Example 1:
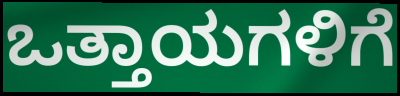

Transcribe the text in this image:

ಒತ್ತಾಯಗಳಿಗೆ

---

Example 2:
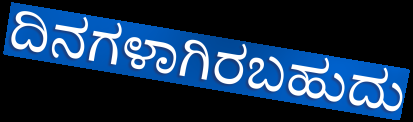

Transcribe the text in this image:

ದಿನಗಳಾಗಿರಬಹುದು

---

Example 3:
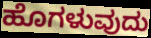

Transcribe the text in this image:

ಹೊಗಳುವುದು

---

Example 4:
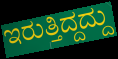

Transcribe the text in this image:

ಇರುತ್ತಿದ್ದದ್ದು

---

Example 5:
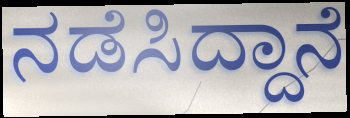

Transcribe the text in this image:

ನಡೆಸಿದ್ದಾನೆ